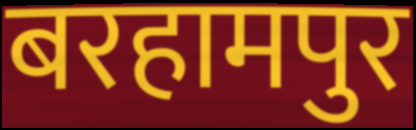
बरहामपुर